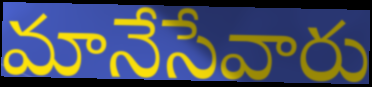
మానేసేవారు